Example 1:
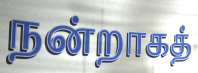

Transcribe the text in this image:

நன்றாகத்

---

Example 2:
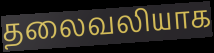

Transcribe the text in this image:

தலைவலியாக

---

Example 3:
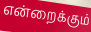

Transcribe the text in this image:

என்றைக்கும்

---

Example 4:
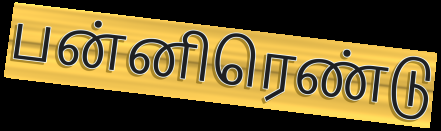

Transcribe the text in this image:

பன்னிரெண்டு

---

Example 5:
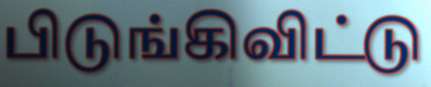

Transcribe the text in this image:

பிடுங்கிவிட்டு